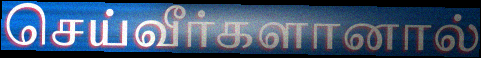
செய்வீர்களானால்